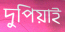
দুপিয়াই